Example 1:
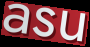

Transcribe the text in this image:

asu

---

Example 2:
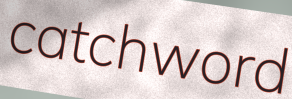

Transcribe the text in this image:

catchword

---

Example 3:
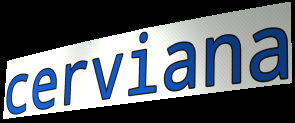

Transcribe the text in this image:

cerviana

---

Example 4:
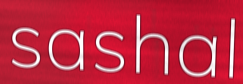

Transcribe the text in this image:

sashal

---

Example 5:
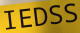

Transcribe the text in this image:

IEDSS